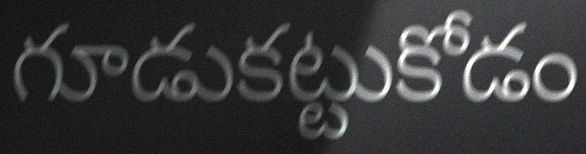
గూడుకట్టుకోడం